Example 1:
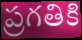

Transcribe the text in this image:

ప్రగతికి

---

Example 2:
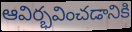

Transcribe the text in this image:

ఆవిర్భవించడానికి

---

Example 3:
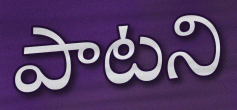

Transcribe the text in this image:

పాటని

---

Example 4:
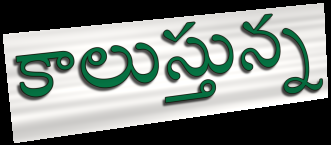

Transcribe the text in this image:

కాలుస్తున్న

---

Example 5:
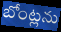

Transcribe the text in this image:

బోంట్లను